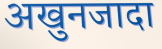
अखुनजादा